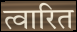
त्वारित